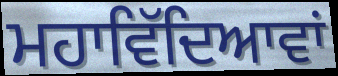
ਮਹਾਵਿੱਦਿਆਵਾਂ